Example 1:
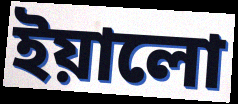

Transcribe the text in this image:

ইয়ালো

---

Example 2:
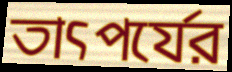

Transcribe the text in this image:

তাৎপর্যের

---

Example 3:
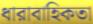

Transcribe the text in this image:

ধারাবাহিকতা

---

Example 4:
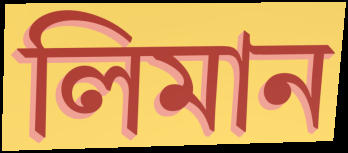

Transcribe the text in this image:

লিমান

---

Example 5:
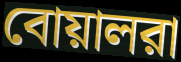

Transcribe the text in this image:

বোয়ালরা